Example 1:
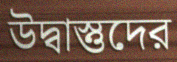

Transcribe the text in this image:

উদ্বাস্তুদের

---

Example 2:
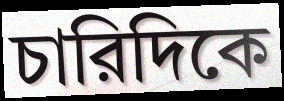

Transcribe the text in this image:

চারিদিকে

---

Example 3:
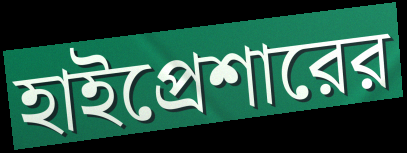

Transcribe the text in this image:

হাইপ্রেশারের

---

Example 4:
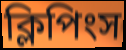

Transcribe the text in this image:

ক্লিপিংস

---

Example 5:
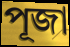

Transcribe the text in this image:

পূজা